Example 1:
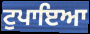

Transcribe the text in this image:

ਟੁਪਾਇਆ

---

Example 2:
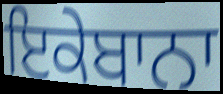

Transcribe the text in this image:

ਇਕੇਬਾਨਾ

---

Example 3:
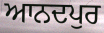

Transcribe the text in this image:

ਆਨਦਪੁਰ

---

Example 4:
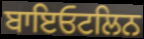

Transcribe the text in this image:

ਬਾਇਓਟਲਿਨ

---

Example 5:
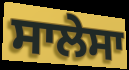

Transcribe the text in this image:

ਸਾਲੇਸਾ